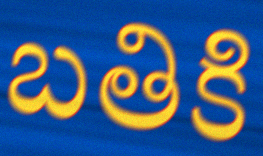
బతికి